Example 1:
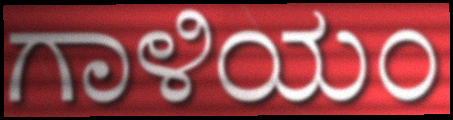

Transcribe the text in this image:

ಗಾಳಿಯಂ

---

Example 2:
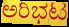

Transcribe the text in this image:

ಅರಿಭಟ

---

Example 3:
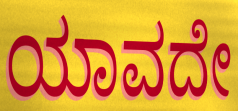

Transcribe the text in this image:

ಯಾವದೇ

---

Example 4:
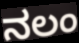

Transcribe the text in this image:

ನಲಂ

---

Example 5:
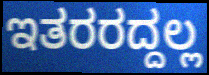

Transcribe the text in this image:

ಇತರರದ್ದಲ್ಲ